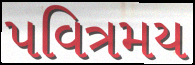
પવિત્રમય